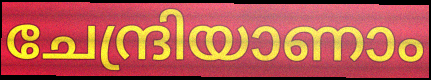
ചേന്ദ്രിയാണാം